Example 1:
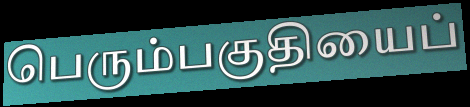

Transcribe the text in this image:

பெரும்பகுதியைப்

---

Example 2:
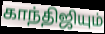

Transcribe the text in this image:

காந்திஜியும்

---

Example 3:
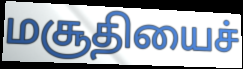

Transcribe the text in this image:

மசூதியைச்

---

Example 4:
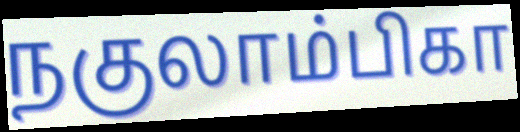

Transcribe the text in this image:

நகுலாம்பிகா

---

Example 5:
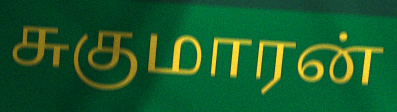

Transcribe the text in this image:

சுகுமாரன்